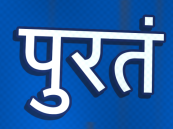
पुरतं